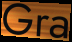
Gra